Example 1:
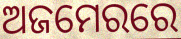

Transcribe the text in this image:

ଅଜମେରରେ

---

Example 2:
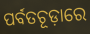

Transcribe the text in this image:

ପର୍ବତଚୂଡ଼ାରେ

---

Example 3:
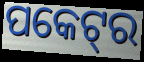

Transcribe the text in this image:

ପକେଟ୍‌ର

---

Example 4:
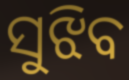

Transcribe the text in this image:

ସୁଝିବ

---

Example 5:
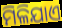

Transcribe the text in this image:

ମିଳିଯାଏ